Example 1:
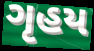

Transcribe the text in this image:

ગૃહય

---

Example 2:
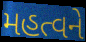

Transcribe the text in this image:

મહત્વને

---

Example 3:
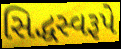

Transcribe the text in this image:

સિદ્ધસ્વરૂપે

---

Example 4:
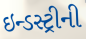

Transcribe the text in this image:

ઇન્ડસ્ટ્રીની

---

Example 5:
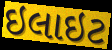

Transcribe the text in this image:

ઇલાઇટ